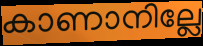
കാണാനില്ലേ